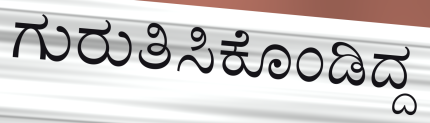
ಗುರುತಿಸಿಕೊಂಡಿದ್ದ